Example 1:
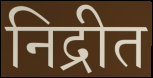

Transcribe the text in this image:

निद्रीत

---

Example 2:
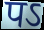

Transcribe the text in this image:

पऽ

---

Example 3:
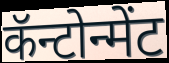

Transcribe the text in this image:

कॅन्टोन्मेंट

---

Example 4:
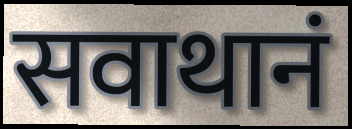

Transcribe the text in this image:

सवाथानं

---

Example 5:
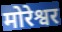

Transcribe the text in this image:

मोरेश्वर